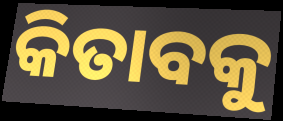
କିତାବକୁ